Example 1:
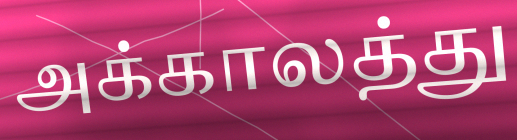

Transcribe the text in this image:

அக்காலத்து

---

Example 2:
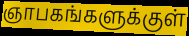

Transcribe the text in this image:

ஞாபகங்களுக்குள்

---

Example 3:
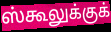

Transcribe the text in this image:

ஸ்கூலுக்குக்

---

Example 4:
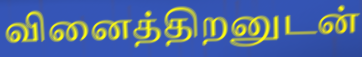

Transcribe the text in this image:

வினைத்திறனுடன்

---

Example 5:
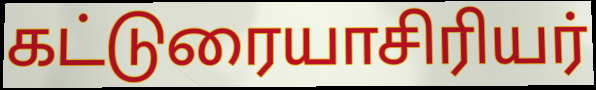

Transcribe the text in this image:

கட்டுரையாசிரியர்